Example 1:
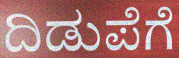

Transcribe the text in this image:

ದಿಡುಪೆಗೆ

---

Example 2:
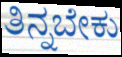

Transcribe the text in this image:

ತಿನ್ನಬೇಕು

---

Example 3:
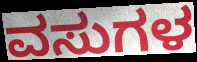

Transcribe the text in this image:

ವಸುಗಳ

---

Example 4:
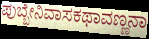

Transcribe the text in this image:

ಪುಬ್ಬೇನಿವಾಸಕಥಾವಣ್ಣನಾ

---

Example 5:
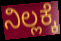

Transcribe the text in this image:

ನಿಲ್ಲಕ್ಕೆ